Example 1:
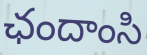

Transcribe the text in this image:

ఛందాంసి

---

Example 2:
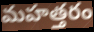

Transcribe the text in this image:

మహత్తరం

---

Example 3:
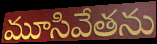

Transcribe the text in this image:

మూసివేతను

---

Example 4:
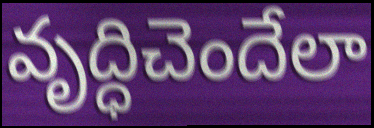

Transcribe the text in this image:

వృద్ధిచెందేలా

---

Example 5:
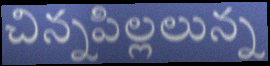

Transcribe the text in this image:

చిన్నపిల్లలున్న